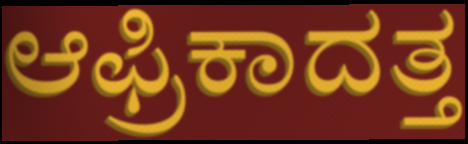
ಆಫ್ರಿಕಾದತ್ತ